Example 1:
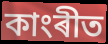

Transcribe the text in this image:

কাংৰীত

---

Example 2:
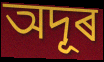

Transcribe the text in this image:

অদূৰ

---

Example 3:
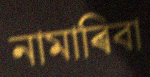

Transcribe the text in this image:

নামাৰিবা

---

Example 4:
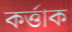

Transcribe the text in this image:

কৰ্ত্তাক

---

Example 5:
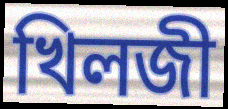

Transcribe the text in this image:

খিলজী